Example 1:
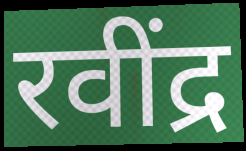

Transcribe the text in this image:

रवींद्र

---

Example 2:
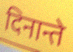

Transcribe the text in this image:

दिनान्ते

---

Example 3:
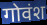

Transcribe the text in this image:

गोवंश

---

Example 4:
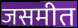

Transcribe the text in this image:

जसमीत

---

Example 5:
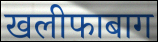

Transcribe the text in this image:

खलीफाबाग